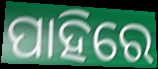
ପାହିରେ